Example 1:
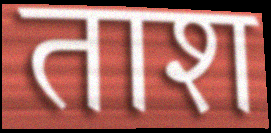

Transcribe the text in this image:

ताश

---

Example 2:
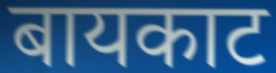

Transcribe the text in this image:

बायकाट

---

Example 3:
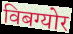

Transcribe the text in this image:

विबग्योर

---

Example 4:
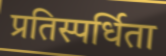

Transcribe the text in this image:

प्रतिस्पर्धिता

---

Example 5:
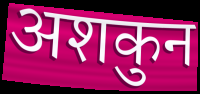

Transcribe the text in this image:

अशकुन